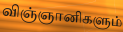
விஞ்ஞானிகளும்